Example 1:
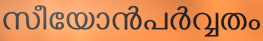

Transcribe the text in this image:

സീയോൻപർവ്വതം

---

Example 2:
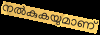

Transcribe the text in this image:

നൽകുകയുമാണ്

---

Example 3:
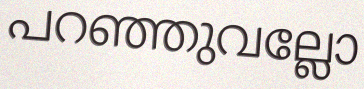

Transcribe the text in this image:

പറഞ്ഞുവല്ലോ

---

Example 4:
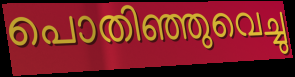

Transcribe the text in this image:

പൊതിഞ്ഞുവെച്ചു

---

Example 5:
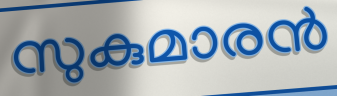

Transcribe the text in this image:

സുകുമാരൻ